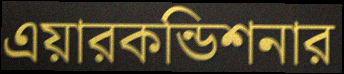
এয়ারকন্ডিশনার